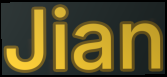
Jian